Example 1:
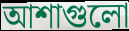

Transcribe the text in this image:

আশাগুলো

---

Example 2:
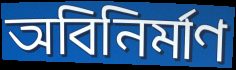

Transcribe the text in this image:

অবিনির্মাণ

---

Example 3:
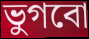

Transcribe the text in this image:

ভুগবো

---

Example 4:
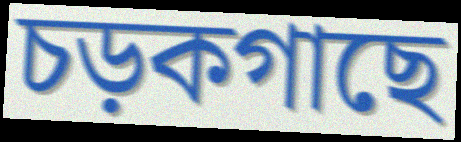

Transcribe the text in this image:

চড়কগাছে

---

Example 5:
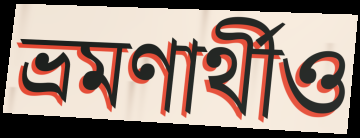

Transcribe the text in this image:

ভ্রমণার্থীও